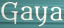
Gaya